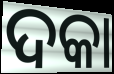
ଦକା